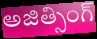
అజిత్సింగ్